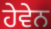
ਹੇਵੇਨ